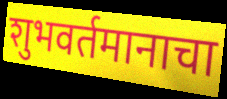
शुभवर्तमानाचा